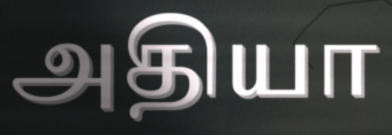
அதியா